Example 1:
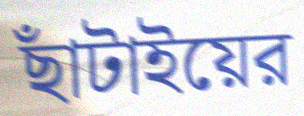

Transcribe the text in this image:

ছাঁটাইয়ের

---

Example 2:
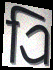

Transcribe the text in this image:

এি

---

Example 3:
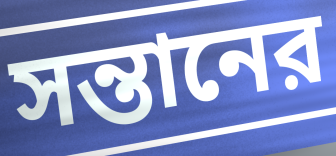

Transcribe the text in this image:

সন্তানের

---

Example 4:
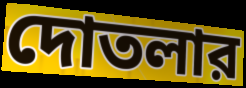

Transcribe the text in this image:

দোতলার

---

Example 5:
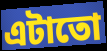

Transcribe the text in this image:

এটাতো